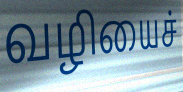
வழியைச்